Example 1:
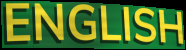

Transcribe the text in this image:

ENGLISH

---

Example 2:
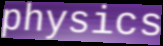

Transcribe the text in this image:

physics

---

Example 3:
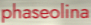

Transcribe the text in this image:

phaseolina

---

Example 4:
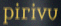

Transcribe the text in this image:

pirivu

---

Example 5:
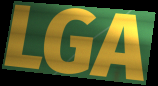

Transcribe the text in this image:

LGA